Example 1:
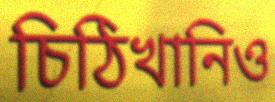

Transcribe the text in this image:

চিঠিখানিও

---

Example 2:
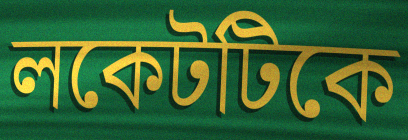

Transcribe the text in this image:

লকেটটিকে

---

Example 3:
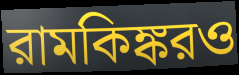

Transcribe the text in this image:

রামকিঙ্করও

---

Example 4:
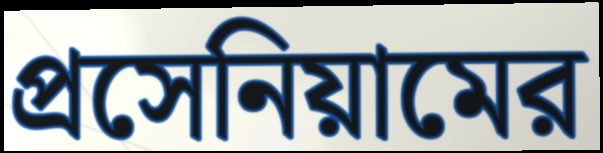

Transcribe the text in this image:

প্রসেনিয়ামের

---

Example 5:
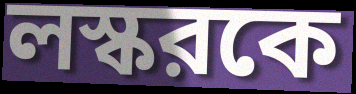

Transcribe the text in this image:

লস্করকে